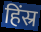
हिंस्र